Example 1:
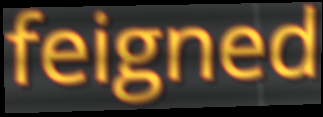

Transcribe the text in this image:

feigned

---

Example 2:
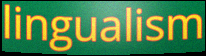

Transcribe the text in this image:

lingualism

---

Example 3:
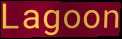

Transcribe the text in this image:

Lagoon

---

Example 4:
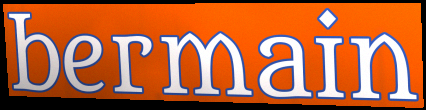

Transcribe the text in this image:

bermain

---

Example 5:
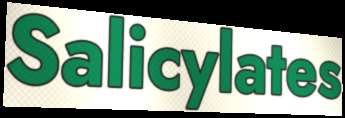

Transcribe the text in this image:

Salicylates